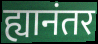
ह्यानंतर